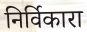
निर्विकारा